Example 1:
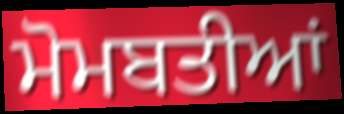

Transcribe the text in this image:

ਮੋਮਬਤੀਆਂ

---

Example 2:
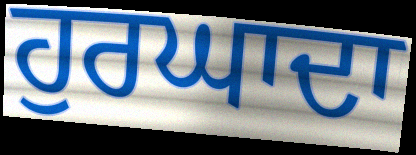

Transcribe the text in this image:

ਹੁਰਘਾਦਾ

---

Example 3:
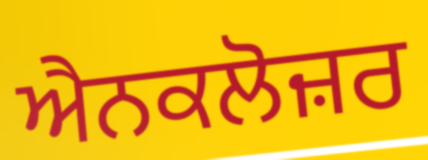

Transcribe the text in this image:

ਐਨਕਲੋਜ਼ਰ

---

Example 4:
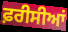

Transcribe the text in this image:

ਫ਼ਰੀਸੀਆਂ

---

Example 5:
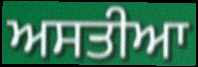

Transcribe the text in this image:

ਅਸਤੀਆ